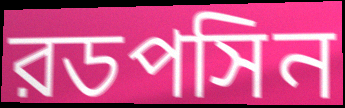
রডপসিন